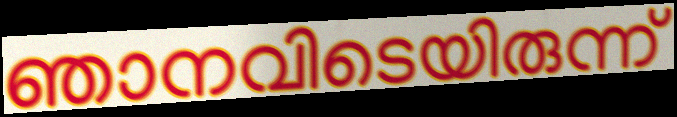
ഞാനവിടെയിരുന്ന്